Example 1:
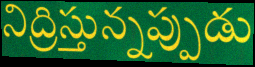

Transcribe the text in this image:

నిద్రిస్తున్నప్పుడు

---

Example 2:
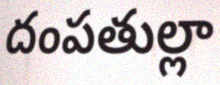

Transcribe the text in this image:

దంపతుల్లా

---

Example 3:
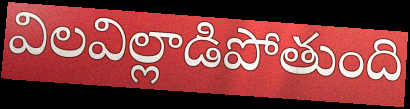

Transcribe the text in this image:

విలవిల్లాడిపోతుంది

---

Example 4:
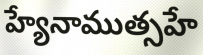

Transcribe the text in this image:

హ్యేనాముత్సహే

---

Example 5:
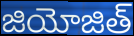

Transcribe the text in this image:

జియోజిత్